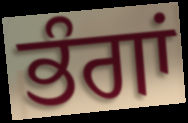
ਭੰਗਾਂ